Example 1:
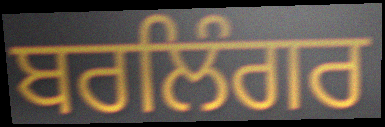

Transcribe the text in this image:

ਬਰਲਿੰਗਰ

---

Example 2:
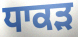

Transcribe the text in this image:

ਧਾਕੜ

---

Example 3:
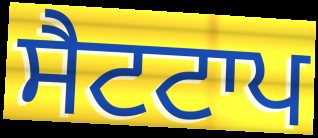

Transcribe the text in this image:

ਸੈਟਟਾਪ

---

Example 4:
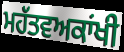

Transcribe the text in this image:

ਮਹੱਤਵਅਕਾਂਖੀ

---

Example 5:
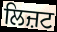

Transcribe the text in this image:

ਲਿਜ਼ਟ